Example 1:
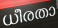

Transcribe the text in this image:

ധീരതാ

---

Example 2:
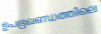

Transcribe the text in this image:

ഉപഭൂഖണ്ഡത്തിലെ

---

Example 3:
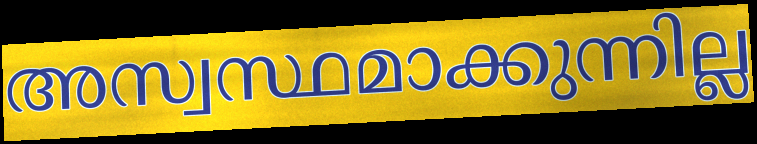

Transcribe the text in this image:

അസ്വസ്ഥമാക്കുന്നില്ല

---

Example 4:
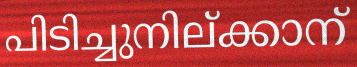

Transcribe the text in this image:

പിടിച്ചുനില്ക്കാന്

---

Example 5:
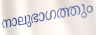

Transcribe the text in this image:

നാലുഭാഗത്തും